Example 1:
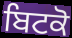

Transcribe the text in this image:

ਬਿਟਕੋ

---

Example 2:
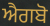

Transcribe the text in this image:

ਐਗਬੋ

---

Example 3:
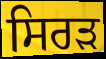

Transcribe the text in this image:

ਸਿਰੜ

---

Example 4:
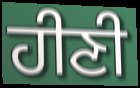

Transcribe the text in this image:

ਹੀਣੀ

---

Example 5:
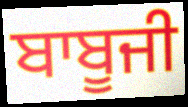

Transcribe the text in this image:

ਬਾਬੂਜੀ